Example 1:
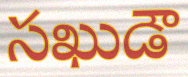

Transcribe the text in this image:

సఖుడౌ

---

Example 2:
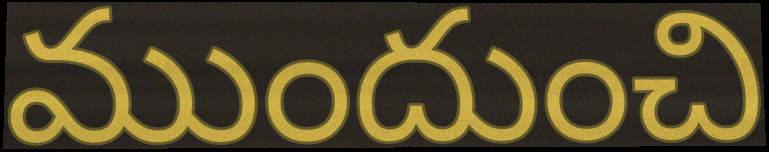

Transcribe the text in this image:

ముందుంచి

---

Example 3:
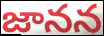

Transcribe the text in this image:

జానన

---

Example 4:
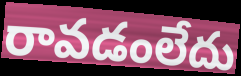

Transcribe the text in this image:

రావడంలేదు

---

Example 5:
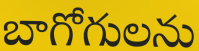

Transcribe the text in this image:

బాగోగులను